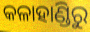
କଳାହାଣ୍ଡିରୁ